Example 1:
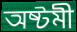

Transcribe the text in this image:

অষ্টমী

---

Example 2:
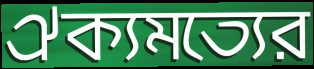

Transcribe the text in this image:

ঐক্যমত্যের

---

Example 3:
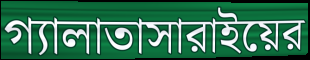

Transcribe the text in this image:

গ্যালাতাসারাইয়ের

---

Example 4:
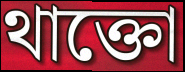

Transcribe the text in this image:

থাক্তো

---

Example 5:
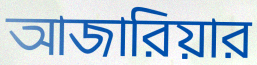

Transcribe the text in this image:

আজারিয়ার